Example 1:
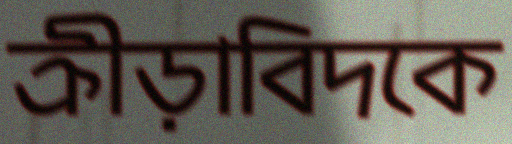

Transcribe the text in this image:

ক্রীড়াবিদকে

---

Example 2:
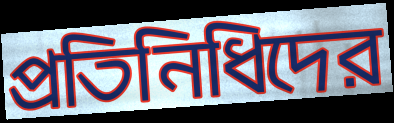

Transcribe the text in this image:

প্রতিনিধিদের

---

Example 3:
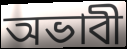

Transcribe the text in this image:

অভাবী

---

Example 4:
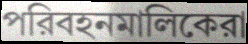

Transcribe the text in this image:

পরিবহনমালিকেরা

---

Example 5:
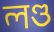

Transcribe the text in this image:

লণ্ড